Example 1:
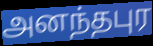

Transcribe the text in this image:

அனந்தபுர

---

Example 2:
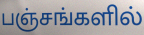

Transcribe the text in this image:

பஞ்சங்களில்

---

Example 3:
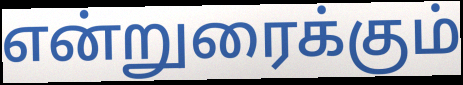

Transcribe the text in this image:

என்றுரைக்கும்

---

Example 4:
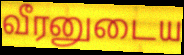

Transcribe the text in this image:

வீரனுடைய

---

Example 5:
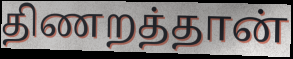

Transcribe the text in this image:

திணறத்தான்